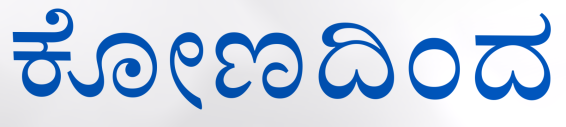
ಕೋಣದಿಂದ